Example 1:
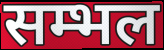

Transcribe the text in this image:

सम्भल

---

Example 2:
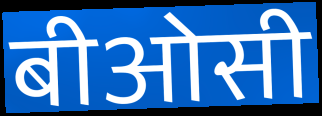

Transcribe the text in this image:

बीओसी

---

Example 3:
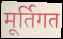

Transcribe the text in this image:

मूर्तिगत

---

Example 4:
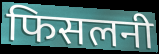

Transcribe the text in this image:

फिसलनी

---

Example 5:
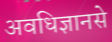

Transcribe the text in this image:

अवधिज्ञानसे